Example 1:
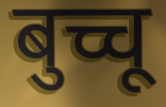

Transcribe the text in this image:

बुच्चू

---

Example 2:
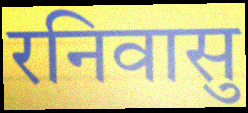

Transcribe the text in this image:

रनिवासु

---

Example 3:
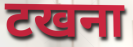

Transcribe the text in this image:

टखना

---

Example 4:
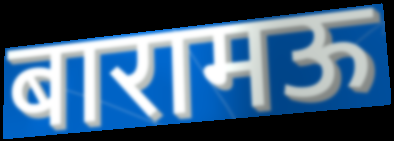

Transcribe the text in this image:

बारामऊ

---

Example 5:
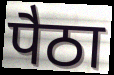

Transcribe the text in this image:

पैठा